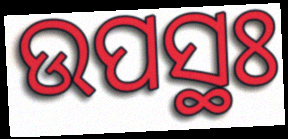
ଉପସ୍ଥଃ